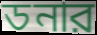
ডনার